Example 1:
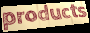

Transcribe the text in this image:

products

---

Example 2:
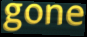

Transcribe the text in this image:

gone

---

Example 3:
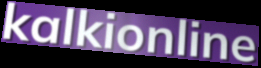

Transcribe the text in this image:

kalkionline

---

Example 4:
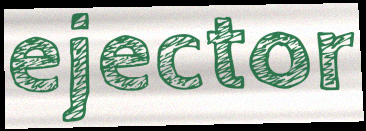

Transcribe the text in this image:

ejector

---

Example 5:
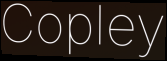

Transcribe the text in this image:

Copley